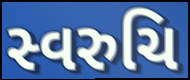
સ્વરુચિ